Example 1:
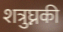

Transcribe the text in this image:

शत्रुघ्नकी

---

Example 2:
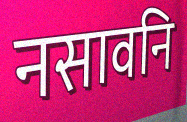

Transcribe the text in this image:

नसावनि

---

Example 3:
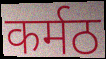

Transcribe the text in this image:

कर्मठ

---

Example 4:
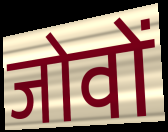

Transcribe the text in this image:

जोवों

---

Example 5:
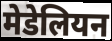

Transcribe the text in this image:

मेडेलियन